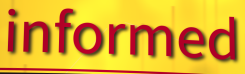
informed